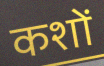
कशों